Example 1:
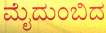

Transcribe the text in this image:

ಮೈದುಂಬಿದ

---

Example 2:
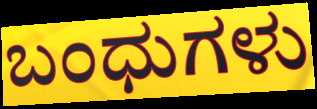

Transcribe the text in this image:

ಬಂಧುಗಳು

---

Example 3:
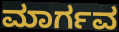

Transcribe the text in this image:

ಮಾರ್ಗವ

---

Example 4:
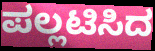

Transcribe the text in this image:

ಪಲ್ಲಟಿಸಿದ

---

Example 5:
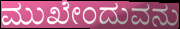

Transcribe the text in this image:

ಮುಖೇಂದುವನು